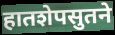
हातशेपसुतने